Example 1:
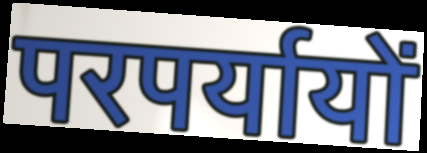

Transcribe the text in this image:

परपर्यायों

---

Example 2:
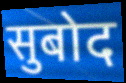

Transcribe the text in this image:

सुबोद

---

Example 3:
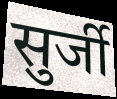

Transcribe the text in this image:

सुर्जी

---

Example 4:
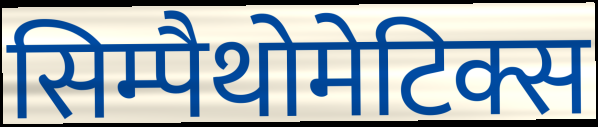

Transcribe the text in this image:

सिम्पैथोमेटिक्स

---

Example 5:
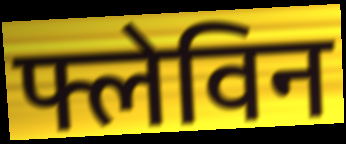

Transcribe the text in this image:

फ्लेविन